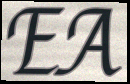
EA